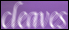
cleaves